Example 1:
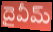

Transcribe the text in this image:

దైవీమ్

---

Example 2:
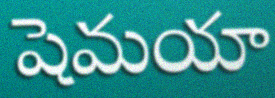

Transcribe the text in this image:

షెమయా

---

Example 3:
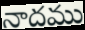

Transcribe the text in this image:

నాదము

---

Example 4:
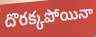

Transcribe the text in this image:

దొరక్కపోయినా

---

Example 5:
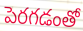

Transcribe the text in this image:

పెరగడంతో